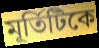
মূর্তিটিকে